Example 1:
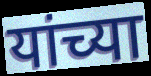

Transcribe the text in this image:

यांच्या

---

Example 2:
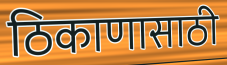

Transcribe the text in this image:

ठिकाणासाठी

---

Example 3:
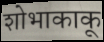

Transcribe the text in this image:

शोभाकाकू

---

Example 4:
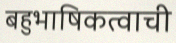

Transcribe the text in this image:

बहुभाषिकत्वाची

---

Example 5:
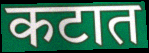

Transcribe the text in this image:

कटात